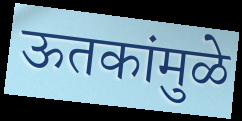
ऊतकांमुळे